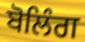
ਬੋਲਿੰਗ